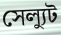
সেল্যুট